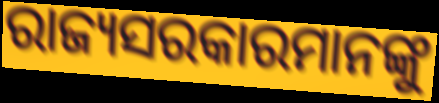
ରାଜ୍ୟସରକାରମାନଙ୍କୁ